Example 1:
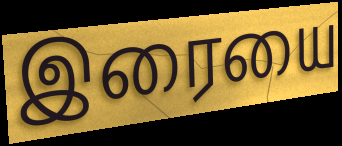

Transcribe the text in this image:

இரையை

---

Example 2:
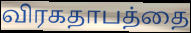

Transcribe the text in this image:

விரகதாபத்தை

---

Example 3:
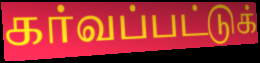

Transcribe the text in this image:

கர்வப்பட்டுக்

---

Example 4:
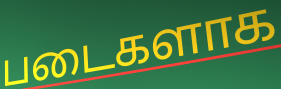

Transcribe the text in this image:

படைகளாக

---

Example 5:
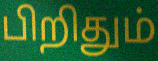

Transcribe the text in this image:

பிறிதும்